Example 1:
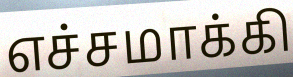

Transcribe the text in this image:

எச்சமாக்கி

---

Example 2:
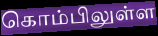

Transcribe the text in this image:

கொம்பிலுள்ள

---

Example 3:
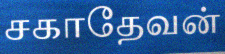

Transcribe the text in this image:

சகாதேவன்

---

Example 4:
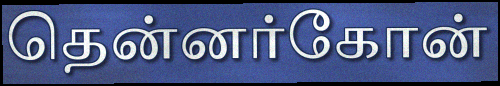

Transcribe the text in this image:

தென்னர்கோன்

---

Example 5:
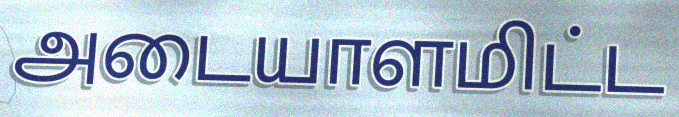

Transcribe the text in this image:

அடையாளமிட்ட